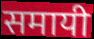
समायी